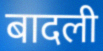
बादली